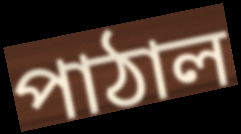
পাঠাল